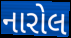
નારોલ